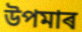
উপমাৰ